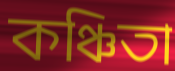
কঞ্চিতা